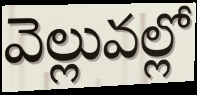
వెల్లువల్లో